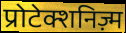
प्रोटेक्शनिज़्म